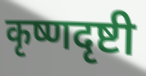
कृष्णदृष्टी